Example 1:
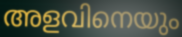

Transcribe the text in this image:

അളവിനെയും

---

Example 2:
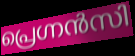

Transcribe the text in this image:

പ്രെഗ്നൻസി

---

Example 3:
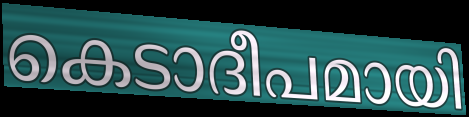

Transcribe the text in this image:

കെടാദീപമായി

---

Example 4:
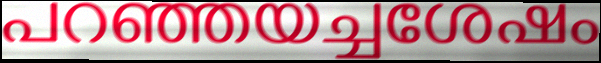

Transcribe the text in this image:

പറഞ്ഞയച്ചശേഷം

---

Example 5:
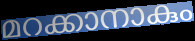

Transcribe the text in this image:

മറക്കാനാകും